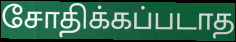
சோதிக்கப்படாத